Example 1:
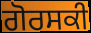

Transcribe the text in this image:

ਗੋਰਸਕੀ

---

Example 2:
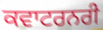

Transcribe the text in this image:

ਕਵਾਟਰਨਰੀ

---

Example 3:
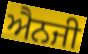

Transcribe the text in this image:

ਐਨਜੀ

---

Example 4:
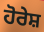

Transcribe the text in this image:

ਹੋਰੇਸ਼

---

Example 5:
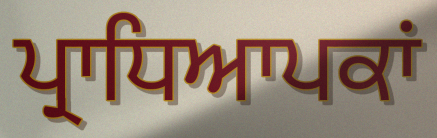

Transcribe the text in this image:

ਪ੍ਰਾਧਿਆਪਕਾਂ